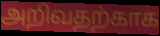
அறிவதற்காக